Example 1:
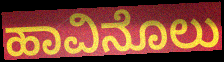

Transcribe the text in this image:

ಹಾವಿನೊಲು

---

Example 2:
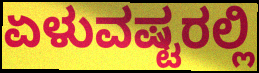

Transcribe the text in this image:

ಏಳುವಷ್ಟರಲ್ಲಿ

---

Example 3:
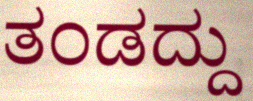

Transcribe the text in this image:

ತಂಡದ್ದು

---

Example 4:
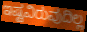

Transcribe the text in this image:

ಇಷ್ಟವಿರುವುದಿಲ್ಲ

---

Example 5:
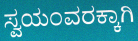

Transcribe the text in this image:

ಸ್ವಯಂವರಕ್ಕಾಗಿ